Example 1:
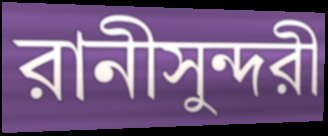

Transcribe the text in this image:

রানীসুন্দরী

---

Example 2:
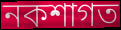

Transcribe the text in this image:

নকশাগত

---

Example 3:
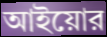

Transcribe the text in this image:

আইয়োর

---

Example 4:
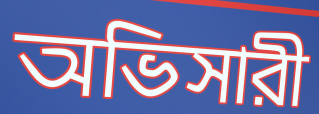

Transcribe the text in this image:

অভিসারী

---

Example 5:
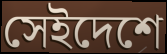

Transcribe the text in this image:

সেইদেশে